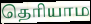
தெரியாம